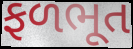
ફળભૂત